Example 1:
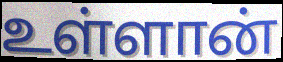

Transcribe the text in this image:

உள்ளான்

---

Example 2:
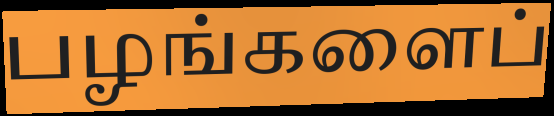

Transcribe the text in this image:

பழங்களைப்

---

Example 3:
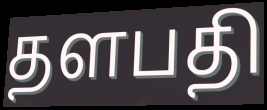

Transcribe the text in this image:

தளபதி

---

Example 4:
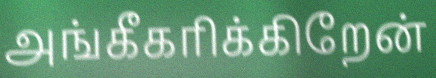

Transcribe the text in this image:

அங்கீகரிக்கிறேன்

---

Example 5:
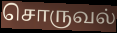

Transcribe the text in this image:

சொருவல்